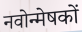
नवोन्मेषकों